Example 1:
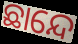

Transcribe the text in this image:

ଛାନ୍ଦେ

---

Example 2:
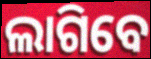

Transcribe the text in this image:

ଲାଗିବେ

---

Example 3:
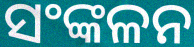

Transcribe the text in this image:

ସଂଙ୍କଳନ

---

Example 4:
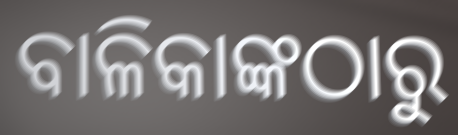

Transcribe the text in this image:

ବାଳିକାଙ୍କଠାରୁ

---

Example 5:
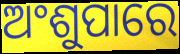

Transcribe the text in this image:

ଅଂଶୁପାରେ